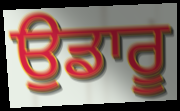
ਉਡਾਰੂ